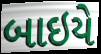
બાઇયે